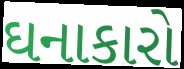
ઘનાકારો